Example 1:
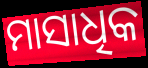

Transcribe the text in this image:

ମାସାଧିକ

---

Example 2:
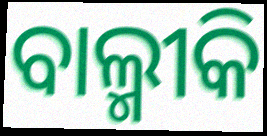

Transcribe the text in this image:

ବାଲ୍ମୀକି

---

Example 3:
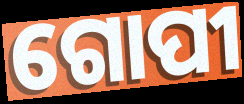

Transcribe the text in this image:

ଗୋପୀ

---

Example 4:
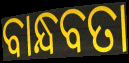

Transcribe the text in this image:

ବାନ୍ଧବତା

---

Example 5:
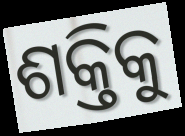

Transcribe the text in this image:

ଶକ୍ତିକୁ